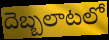
దెబ్బలాటలో